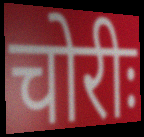
चोरीः